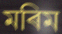
মৰিম